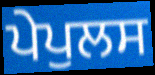
ਪੇਪੁਲਸ